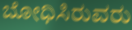
ಬೋಧಿಸಿರುವರು